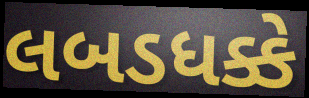
લબડધક્કે